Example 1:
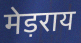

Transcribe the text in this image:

मेड़राय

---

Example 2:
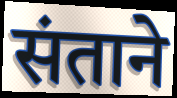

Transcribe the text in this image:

संताने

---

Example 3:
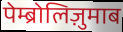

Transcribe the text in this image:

पेम्ब्रोलिज़ुमाब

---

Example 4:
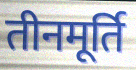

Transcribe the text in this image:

तीनमूर्ति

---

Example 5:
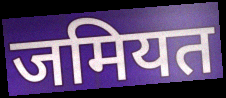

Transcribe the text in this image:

जमियत